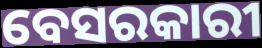
ବେସରକାରୀ